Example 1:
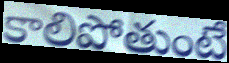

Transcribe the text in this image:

కాలిపోతుంటే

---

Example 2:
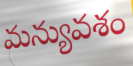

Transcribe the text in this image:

మన్యువశం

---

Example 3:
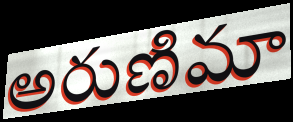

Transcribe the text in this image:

అరుణిమా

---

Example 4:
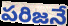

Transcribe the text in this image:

పరిజనే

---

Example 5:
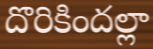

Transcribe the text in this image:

దొరికిందల్లా